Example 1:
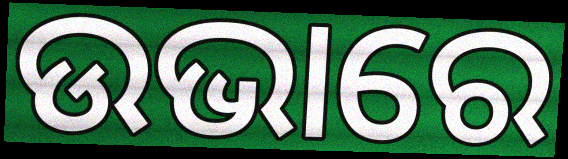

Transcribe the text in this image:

ଉଭାରେ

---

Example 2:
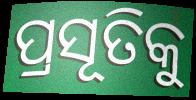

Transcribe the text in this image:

ପ୍ରସୂତିକୁ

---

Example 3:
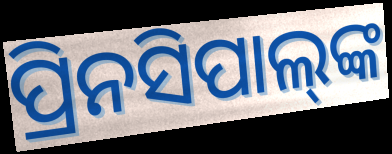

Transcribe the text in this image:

ପ୍ରିନସିପାଲ୍‍ଙ୍କ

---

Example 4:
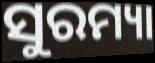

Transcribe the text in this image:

ସୁରମ୍ୟା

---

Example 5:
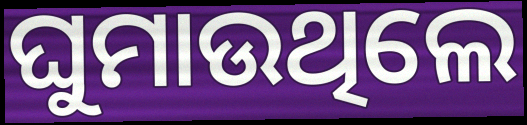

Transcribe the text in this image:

ଘୁମାଉଥିଲେ